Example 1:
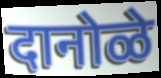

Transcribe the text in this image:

दानोळे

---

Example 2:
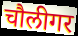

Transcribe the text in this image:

चौलीगर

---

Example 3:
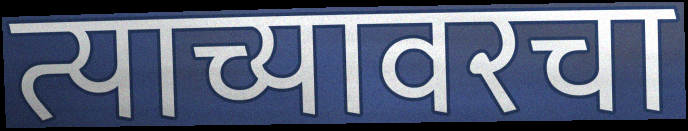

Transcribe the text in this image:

त्याच्यावरचा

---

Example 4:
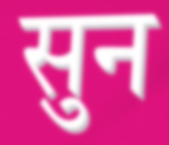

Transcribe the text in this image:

सुन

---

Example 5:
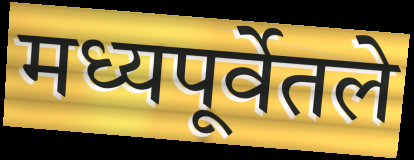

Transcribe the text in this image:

मध्यपूर्वेतले